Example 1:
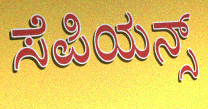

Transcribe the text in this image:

ಸೆಪಿಯನ್ಸ್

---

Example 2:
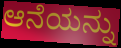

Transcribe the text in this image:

ಆನೆಯನ್ನು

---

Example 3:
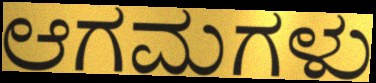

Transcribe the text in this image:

ಆಗಮಗಳು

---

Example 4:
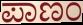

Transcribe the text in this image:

ಪಾಣಂ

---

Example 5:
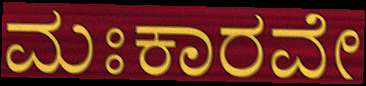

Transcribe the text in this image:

ಮಃಕಾರವೇ